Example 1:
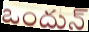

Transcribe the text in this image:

ఒందున్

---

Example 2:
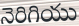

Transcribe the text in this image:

నెరిగియు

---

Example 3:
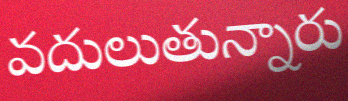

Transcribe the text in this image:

వదులుతున్నారు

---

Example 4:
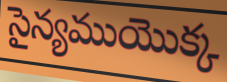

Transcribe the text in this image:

సైన్యముయొక్క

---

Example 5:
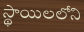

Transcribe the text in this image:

స్థాయిలలోని